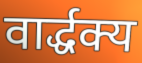
वार्द्धक्य